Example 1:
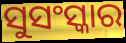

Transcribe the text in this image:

ସୁସଂସ୍କାର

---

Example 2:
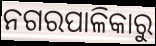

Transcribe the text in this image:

ନଗରପାଳିକାରୁ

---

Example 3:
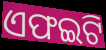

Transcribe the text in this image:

ଏଫଇଟି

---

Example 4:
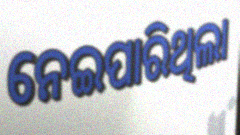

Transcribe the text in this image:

ନେଇପାରିଥିଲା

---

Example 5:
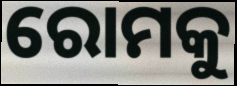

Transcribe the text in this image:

ରୋମକୁ